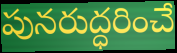
పునరుద్ధరించే